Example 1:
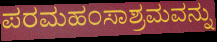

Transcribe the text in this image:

ಪರಮಹಂಸಾಶ್ರಮವನ್ನು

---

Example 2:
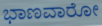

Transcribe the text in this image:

ಭಾಣವಾರೋ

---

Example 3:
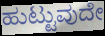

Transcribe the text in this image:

ಹುಟ್ಟುವುದೇ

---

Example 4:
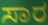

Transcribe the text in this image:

ಸಾರ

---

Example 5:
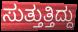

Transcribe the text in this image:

ಸುತ್ತುತ್ತಿದ್ದು